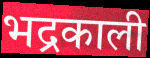
भद्रकाली